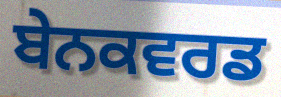
ਬੇਨਕਵਰਡ